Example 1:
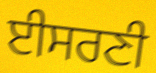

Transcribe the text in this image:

ਈਸਰਣੀ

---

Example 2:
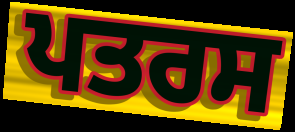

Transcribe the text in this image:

ਪਤਰਸ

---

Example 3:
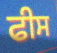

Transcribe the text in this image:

ਫੀਸ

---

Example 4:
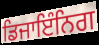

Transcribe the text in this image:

ਡਿਜਾਇੰਨਿਗ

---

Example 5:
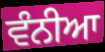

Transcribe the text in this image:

ਵੰਨੀਆ